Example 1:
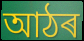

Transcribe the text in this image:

আঠৰ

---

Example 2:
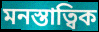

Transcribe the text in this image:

মনস্তাত্বিক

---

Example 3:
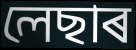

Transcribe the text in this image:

লেছাৰ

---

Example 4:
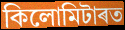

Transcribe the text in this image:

কিলোমিটাৰত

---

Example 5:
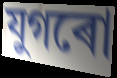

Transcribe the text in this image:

যুগৰো